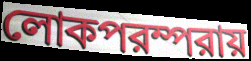
লোকপরম্পরায়